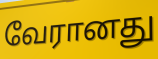
வேரானது